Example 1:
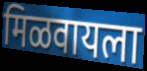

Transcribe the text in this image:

मिळवायला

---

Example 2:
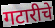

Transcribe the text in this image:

गटारीचे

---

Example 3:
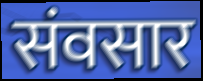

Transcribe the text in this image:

संवसार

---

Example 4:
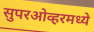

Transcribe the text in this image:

सुपरओव्हरमध्ये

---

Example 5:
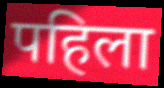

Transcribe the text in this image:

पहिला